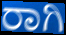
ರಾಗಿ